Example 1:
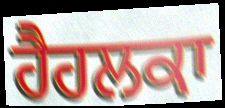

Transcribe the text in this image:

ਹੈਹਲਕਾ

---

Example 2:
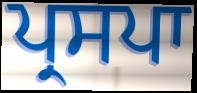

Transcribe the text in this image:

ਪ੍ਰਸਪਾ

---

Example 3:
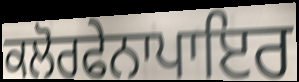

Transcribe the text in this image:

ਕਲੋਰਫੇਨਾਪਾਇਰ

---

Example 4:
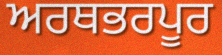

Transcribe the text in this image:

ਅਰਥਭਰਪੂਰ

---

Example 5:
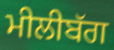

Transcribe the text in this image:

ਮੀਲੀਬੱਗ